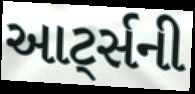
આર્ટ્સની